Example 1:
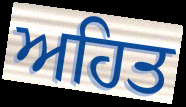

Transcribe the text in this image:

ਅਹਿਤ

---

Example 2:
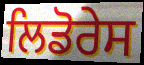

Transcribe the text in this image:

ਲਿਡੋਰੇਸ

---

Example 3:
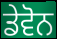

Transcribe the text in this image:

ਡੇਵੋਨ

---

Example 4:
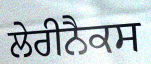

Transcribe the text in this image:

ਲੇਰੀਨੈਕਸ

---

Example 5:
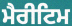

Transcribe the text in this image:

ਮੈਰੀਟਿਮ